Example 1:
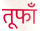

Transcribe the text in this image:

तूफाँ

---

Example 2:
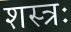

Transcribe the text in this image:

शस्त्रः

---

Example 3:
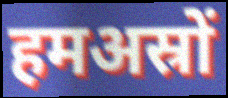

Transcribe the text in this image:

हमअस्रों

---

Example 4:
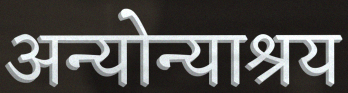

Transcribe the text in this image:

अन्योन्याश्रय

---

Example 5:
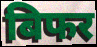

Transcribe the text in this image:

बिफर